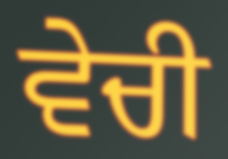
ਵੇਚੀ